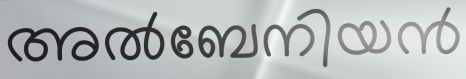
അൽബേനിയൻ